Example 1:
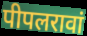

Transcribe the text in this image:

पीपलरावां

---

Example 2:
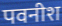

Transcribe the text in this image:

पवनीश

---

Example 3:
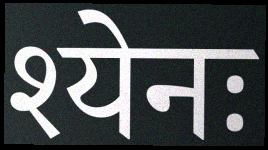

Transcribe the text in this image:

श्येनः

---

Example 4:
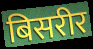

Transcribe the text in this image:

बिसरीर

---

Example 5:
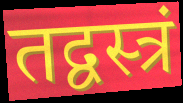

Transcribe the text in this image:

तद्वस्त्रं